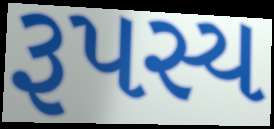
રૂપસ્ય